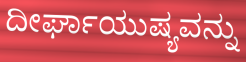
ದೀರ್ಘಾಯುಷ್ಯವನ್ನು